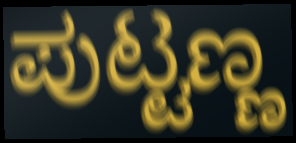
ಪುಟ್ಟಣ್ಣ